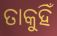
ତାକୁହିଁ